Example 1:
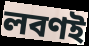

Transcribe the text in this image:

লবণই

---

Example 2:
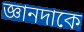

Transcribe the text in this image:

জ্ঞানদাকে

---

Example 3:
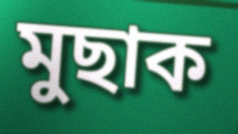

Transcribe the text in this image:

মুছাক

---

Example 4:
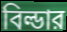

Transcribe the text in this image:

বিল্ডার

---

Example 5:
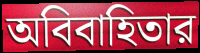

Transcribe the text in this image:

অবিবাহিতার